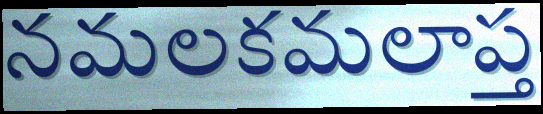
నమలకమలాప్త